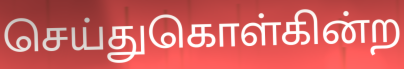
செய்துகொள்கின்ற